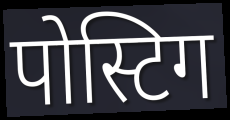
पोस्टिग